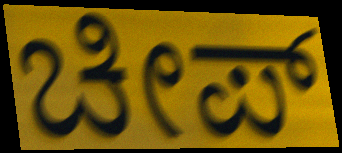
ಚೀಪ್